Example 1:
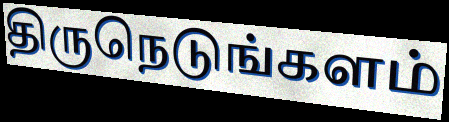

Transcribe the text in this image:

திருநெடுங்களம்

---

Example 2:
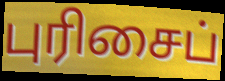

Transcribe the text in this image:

புரிசைப்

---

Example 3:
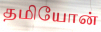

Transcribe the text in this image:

தமியோன்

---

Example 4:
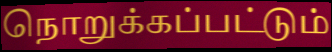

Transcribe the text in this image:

நொறுக்கப்பட்டும்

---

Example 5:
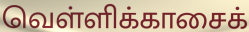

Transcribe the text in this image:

வெள்ளிக்காசைக்